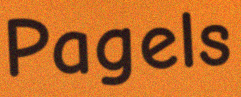
Pagels